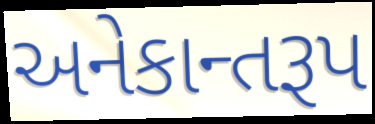
અનેકાન્તરૂપ